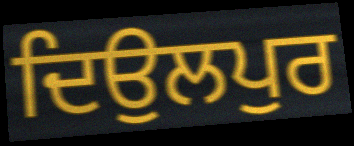
ਦਿਉਲਪੁਰ